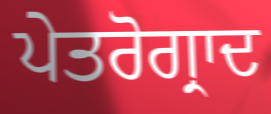
ਪੇਤਰੋਗ੍ਰਾਦ